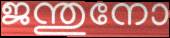
ജന്തുനോ